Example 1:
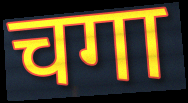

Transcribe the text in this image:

चगा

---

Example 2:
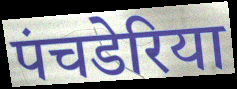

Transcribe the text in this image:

पंचडेरिया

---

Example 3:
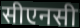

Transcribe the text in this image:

सीएनसी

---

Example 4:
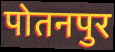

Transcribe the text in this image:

पोतनपुर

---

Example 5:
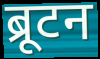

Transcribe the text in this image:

ब्रूटन